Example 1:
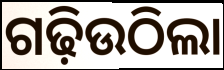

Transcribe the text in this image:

ଗଢ଼ିଉଠିଲା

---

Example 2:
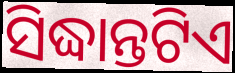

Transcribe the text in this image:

ସିଦ୍ଧାନ୍ତଟିଏ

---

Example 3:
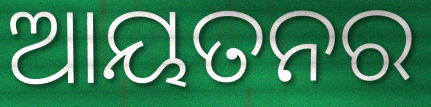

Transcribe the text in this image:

ଆୟତନର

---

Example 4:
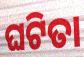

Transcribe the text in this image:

ଘଟିତା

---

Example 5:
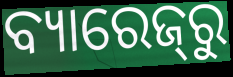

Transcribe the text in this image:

ବ୍ୟାରେଜ୍‌ରୁ